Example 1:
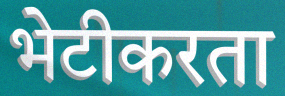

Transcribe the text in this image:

भेटीकरता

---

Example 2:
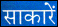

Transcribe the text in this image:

साकारें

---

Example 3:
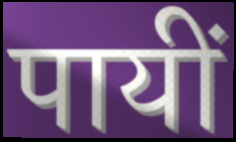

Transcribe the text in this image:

पायीं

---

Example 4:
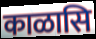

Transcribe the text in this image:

काळासि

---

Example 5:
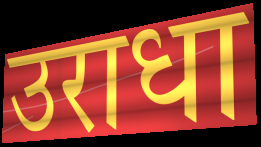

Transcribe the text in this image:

उराधा